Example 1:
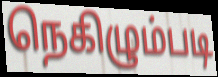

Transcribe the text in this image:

நெகிழும்படி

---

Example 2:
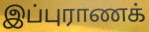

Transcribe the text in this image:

இப்புராணக்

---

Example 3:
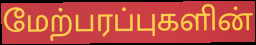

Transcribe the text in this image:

மேற்பரப்புகளின்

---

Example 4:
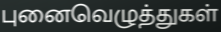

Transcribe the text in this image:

புனைவெழுத்துகள்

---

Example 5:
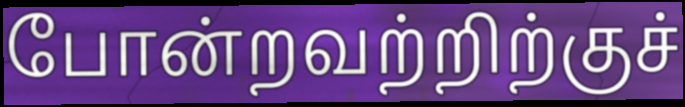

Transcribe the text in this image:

போன்றவற்றிற்குச்